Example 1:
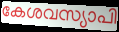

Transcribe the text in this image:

കേശവസ്യാപി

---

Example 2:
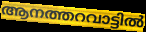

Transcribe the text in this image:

ആനത്തറവാട്ടിൽ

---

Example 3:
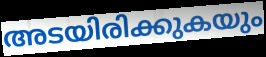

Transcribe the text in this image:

അടയിരിക്കുകയും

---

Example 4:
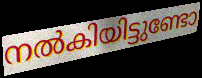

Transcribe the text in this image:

നൽകിയിട്ടുണ്ടോ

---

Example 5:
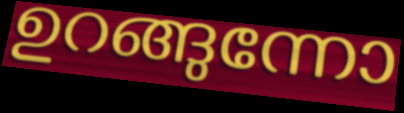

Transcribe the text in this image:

ഉറങ്ങുന്നോ